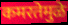
कमरतेमुळे